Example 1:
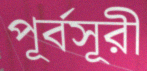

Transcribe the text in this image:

পূর্বসূরী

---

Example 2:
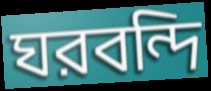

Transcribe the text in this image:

ঘরবন্দি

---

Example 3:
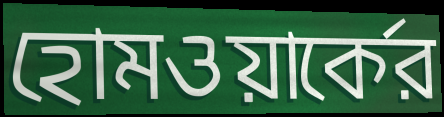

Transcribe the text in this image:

হোমওয়ার্কের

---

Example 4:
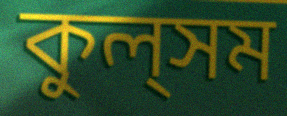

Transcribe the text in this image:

কুল্‌সম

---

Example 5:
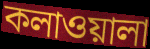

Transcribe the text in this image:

কলাওয়ালা